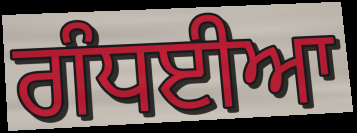
ਗੰਧਈਆ